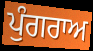
ਪੁੰਗਰਾਅ